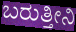
ಬರುತ್ತೀನಿ